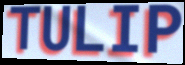
TULIP